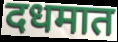
दधमात